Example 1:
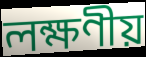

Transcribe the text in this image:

লক্ষণীয়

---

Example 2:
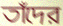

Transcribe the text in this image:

তাঁদের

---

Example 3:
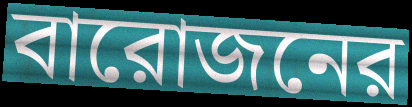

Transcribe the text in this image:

বারোজনের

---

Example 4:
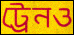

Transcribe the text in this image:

ট্রেনও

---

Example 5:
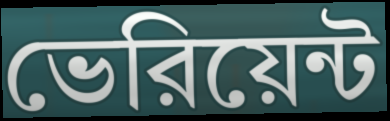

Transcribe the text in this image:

ভেরিয়েন্ট